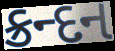
ક્રન્દન